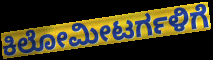
ಕಿಲೋಮೀಟರ್ಗಳಿಗೆ